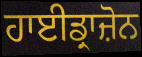
ਹਾਈਡ੍ਰਾਜ਼ੋਨ